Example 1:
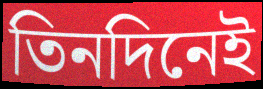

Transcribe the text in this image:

তিনদিনেই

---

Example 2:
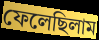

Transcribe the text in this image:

ফেলেছিলাম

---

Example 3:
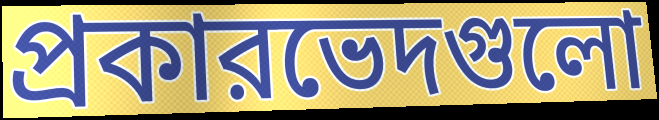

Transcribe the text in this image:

প্রকারভেদগুলো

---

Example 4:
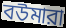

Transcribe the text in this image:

বউমারা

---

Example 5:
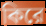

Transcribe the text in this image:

কিরে